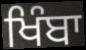
ਖਿੰਬਾ